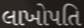
લાખોપતિ